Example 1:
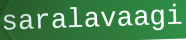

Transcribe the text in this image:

saralavaagi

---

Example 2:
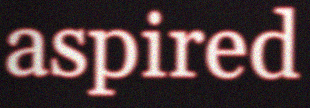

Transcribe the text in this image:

aspired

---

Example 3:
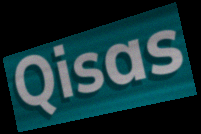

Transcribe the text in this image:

Qisas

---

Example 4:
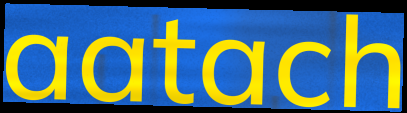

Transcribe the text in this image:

aatach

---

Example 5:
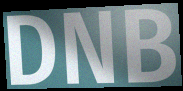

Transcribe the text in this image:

DNB